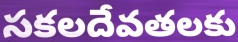
సకలదేవతలకు